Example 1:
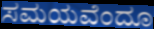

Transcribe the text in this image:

ಸಮಯವೆಂದೂ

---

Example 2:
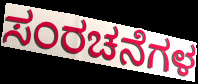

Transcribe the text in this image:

ಸಂರಚನೆಗಳ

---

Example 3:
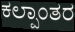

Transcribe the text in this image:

ಕಲ್ಪಾಂತರ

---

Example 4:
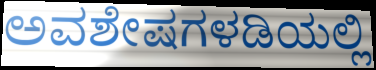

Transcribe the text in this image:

ಅವಶೇಷಗಳಡಿಯಲ್ಲಿ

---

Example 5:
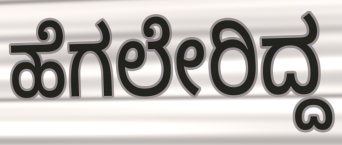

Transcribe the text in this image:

ಹೆಗಲೇರಿದ್ದ